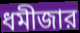
ধমীজার